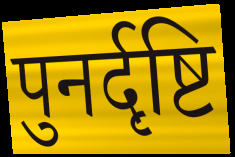
पुनर्दृष्टि